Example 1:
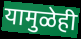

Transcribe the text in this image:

यामुळेही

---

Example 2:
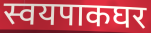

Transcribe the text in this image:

स्वयपाकघर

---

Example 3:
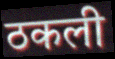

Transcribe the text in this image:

ठकली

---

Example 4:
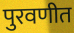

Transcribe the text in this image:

पुरवणीत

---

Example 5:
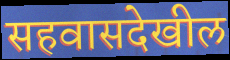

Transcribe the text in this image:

सहवासदेखील